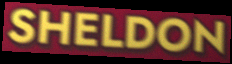
SHELDON